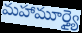
మహామూర్త్యై